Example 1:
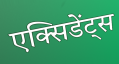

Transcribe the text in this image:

एक्सिडेंट्स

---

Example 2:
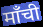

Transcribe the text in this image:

माँची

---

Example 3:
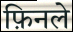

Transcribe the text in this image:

फ़िनले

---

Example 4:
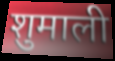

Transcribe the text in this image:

शुमाली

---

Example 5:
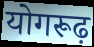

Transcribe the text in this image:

योगरूढ़